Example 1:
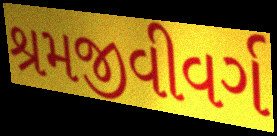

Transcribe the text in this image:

શ્રમજીવીવર્ગ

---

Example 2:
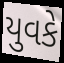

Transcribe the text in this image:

યુવકે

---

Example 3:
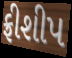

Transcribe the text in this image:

ફ્રીશીપ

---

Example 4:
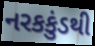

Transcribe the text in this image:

નરકકુંડથી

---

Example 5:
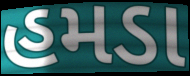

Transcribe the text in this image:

હમડા